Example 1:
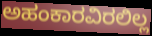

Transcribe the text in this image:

ಅಹಂಕಾರವಿರಲಿಲ್ಲ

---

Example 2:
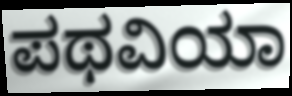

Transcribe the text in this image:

ಪಥವಿಯಾ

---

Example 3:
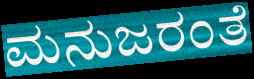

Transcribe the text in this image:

ಮನುಜರಂತೆ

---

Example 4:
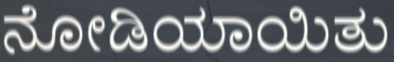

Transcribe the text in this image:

ನೋಡಿಯಾಯಿತು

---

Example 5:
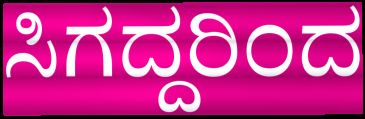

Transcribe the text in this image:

ಸಿಗದ್ದರಿಂದ